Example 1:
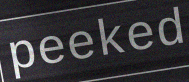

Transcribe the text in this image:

peeked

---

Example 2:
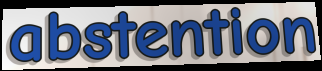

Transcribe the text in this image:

abstention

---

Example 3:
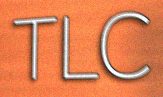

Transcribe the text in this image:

TLC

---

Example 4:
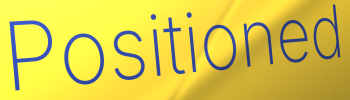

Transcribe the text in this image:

Positioned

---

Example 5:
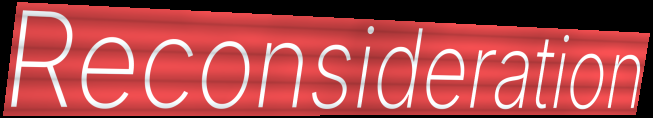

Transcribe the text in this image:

Reconsideration